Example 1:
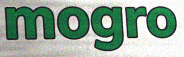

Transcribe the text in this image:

mogro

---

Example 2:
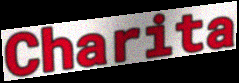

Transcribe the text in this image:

Charita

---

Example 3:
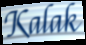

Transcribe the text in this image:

Kalak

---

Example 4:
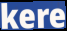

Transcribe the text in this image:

kere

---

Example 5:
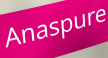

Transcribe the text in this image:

Anaspure